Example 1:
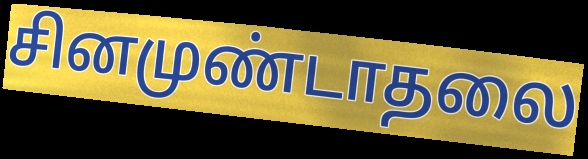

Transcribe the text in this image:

சினமுண்டாதலை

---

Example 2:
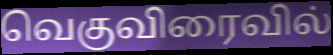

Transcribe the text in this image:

வெகுவிரைவில்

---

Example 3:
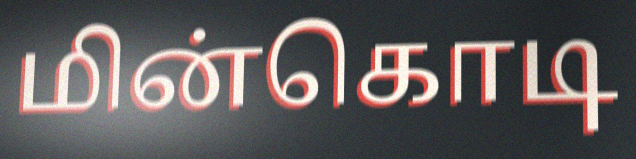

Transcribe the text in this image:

மின்கொடி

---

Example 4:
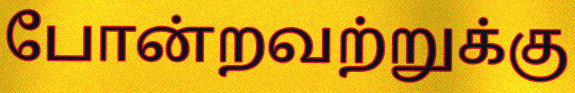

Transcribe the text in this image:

போன்றவற்றுக்கு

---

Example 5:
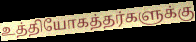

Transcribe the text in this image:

உத்தியோகத்தர்களுக்கு